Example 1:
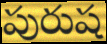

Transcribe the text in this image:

పురుష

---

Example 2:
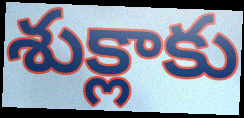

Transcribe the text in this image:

శుక్లాకు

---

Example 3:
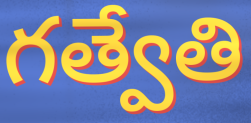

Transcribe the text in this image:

గత్వేతి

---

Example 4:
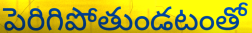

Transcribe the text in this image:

పెరిగిపోతుండటంతో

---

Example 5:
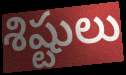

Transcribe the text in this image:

శిష్టులు